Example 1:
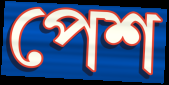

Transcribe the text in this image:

পেশ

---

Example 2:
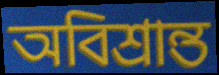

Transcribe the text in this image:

অবিশ্রান্ত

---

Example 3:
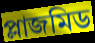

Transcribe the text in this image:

প্লাজমিড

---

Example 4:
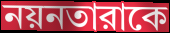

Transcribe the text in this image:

নয়নতারাকে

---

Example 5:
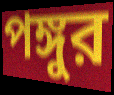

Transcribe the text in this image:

পঙ্গুর